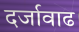
दर्जावाढ